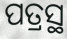
ପତ୍ରସ୍ଥ